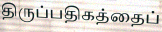
திருப்பதிகத்தைப்